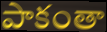
పాకంతా